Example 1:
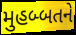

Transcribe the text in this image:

મુહબ્બતને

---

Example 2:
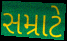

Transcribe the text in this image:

સમ્રાટે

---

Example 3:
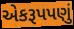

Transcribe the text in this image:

એકરૂપપણું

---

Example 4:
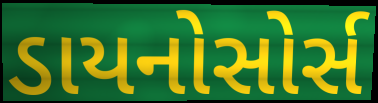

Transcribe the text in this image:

ડાયનોસોર્સ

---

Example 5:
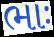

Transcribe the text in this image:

ભાઃ